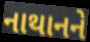
નાથાનને